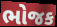
ભોજક